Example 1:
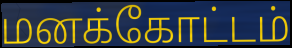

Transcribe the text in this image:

மனக்கோட்டம்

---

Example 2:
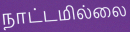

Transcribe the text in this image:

நாட்டமில்லை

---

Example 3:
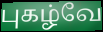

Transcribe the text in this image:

புகழ்வே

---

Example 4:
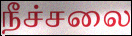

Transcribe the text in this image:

நீச்சலை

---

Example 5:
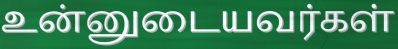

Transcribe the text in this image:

உன்னுடையவர்கள்